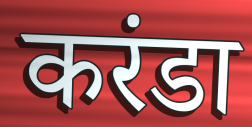
करंडा